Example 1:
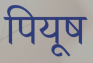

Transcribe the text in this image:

पियूष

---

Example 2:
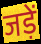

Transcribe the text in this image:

जड़ें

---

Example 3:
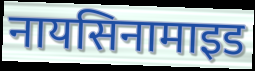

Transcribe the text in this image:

नायसिनामाइड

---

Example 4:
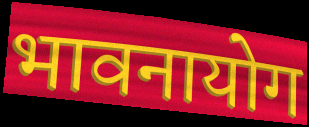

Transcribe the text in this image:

भावनायोग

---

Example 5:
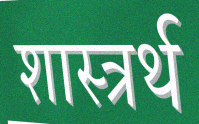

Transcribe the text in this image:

शास्त्रर्थ